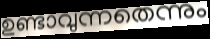
ഉണ്ടാവുന്നതെന്നും